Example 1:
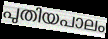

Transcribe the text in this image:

പുതിയപാലം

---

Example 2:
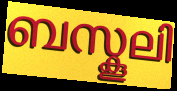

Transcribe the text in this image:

ബസ്കൂലി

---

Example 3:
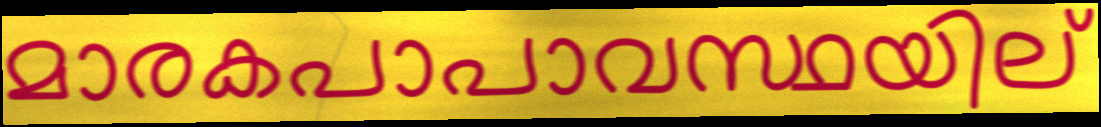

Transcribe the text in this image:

മാരകപാപാവസ്ഥയില്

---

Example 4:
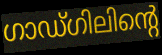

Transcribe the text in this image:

ഗാഡ്ഗിലിന്റെ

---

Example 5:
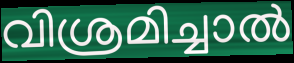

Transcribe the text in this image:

വിശ്രമിച്ചാൽ